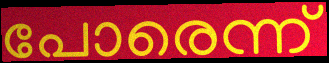
പോരെന്ന്